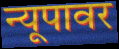
न्यूपावर